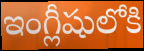
ఇంగ్లీషులోకి